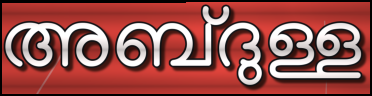
അബ്ദുള്ള